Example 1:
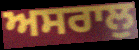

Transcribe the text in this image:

ਅਸਰਾਲੁ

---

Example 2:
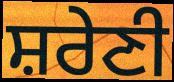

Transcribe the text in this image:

ਸ਼ਰੇਣੀ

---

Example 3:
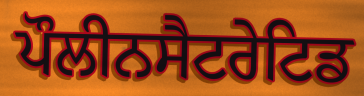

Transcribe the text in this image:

ਪੌਲੀਨਸੈਟਰੇਟਿਡ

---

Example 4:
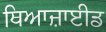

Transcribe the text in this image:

ਥਿਆਜ਼ਾਈਡ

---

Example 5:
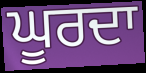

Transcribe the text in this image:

ਘੂਰਦਾ